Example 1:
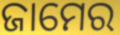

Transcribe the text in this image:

ଜାମେର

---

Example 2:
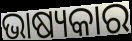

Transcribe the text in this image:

ଭାଷ୍ୟକାର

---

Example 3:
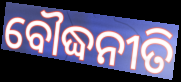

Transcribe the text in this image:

ବୌଦ୍ଧନୀତି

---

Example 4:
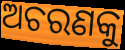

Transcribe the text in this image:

ଅଚରଣକୁ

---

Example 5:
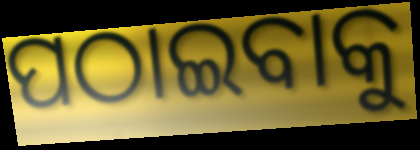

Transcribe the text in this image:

ପଠାଇବାକୁ